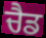
ਚੈਡ